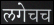
लगेचच